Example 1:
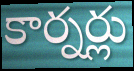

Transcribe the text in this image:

కార్నర్లు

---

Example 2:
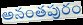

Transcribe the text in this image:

అనంతపురం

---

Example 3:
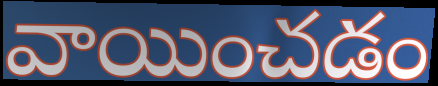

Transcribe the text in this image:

వాయించడం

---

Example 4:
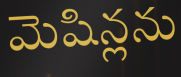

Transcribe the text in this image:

మెషిన్లను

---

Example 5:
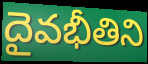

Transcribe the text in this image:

దైవభీతిని